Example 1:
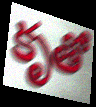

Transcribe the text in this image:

కృతో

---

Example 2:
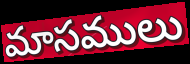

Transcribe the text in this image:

మాసములు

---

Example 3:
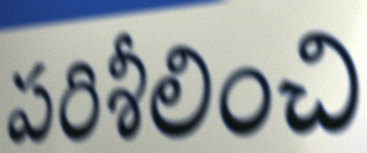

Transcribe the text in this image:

పరిశీలించి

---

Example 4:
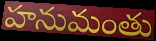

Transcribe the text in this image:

హనుమంతు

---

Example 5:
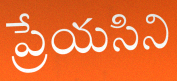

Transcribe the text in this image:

ప్రేయసిని